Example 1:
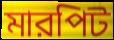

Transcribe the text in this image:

মারপিট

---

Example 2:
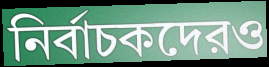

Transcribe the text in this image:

নির্বাচকদেরও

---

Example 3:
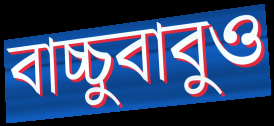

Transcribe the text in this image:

বাচ্চুবাবুও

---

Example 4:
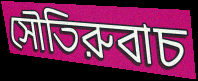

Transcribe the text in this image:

সৌতিরুবাচ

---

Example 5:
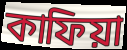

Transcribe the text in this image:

কাফিয়া